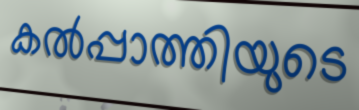
കൽപ്പാത്തിയുടെ